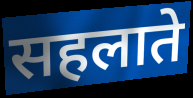
सहलाते